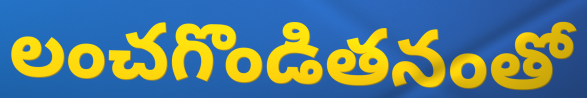
లంచగొండితనంతో